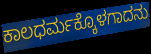
ಕಾಲಧರ್ಮಕ್ಕೊಳಗಾದನು